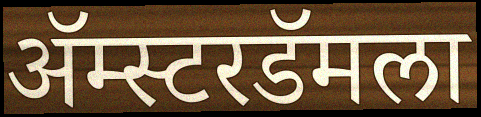
ॲम्स्टरडॅमला